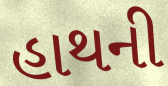
હાથની